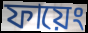
ফায়েং